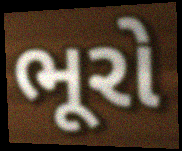
ભૂરો